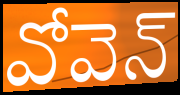
వోవెన్